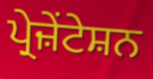
ਪ੍ਰੇਜ਼ੇਂਟੇਸ਼ਨ